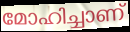
മോഹിച്ചാണ്